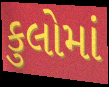
કુલોમાં